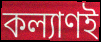
কল্যাণই